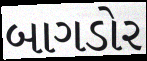
બાગડોર